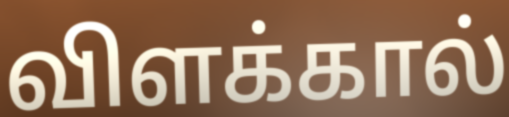
விளக்கால்